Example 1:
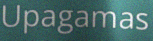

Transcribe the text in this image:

Upagamas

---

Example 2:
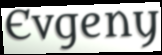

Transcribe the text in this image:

Evgeny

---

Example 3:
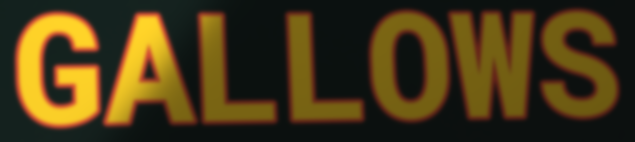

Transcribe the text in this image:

GALLOWS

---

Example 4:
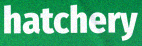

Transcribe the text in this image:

hatchery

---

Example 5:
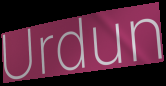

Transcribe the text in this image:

Urdun